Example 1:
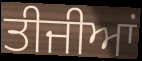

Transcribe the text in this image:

ਤੀਜੀਆਂ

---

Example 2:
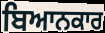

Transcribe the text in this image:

ਬਿਆਨਕਾਰ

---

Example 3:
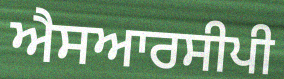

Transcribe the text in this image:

ਐਸਆਰਸੀਪੀ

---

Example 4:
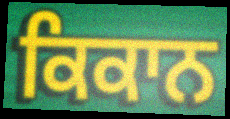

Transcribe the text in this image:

ਕਿਕਾਨ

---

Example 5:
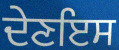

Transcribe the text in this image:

ਦੇਣਇਸ